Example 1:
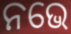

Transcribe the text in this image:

ନଭେ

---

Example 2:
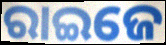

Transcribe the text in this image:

ରାଇଜେ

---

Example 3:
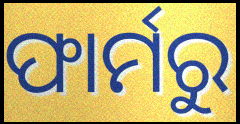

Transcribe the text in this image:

ଫାର୍ମରୁ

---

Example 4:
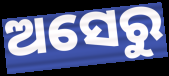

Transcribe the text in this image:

ଅସେରୁ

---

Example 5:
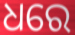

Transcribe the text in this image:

ଧରେ